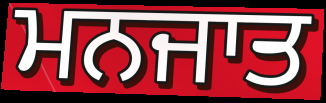
ਮਨਜਾਤ